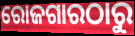
ରୋଜଗାରଠାରୁ